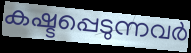
കഷ്ടപ്പെടുന്നവർ